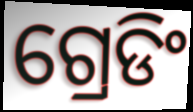
ଗ୍ରେଡିଂ